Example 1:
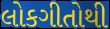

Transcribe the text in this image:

લોકગીતોથી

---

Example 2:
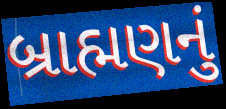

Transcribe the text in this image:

બ્રાહ્મણનું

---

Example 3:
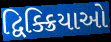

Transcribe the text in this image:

દ્વિક્ક્રિયાઓ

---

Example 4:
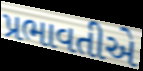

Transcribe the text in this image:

પ્રભાવતીએ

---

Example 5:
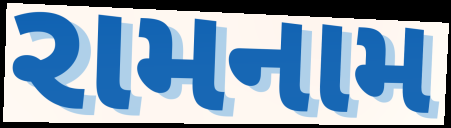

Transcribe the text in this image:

રામનામ